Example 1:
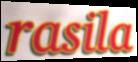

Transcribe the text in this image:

rasila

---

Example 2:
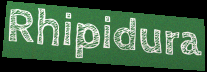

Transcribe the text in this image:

Rhipidura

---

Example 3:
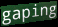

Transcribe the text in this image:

gaping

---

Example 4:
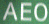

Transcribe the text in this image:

AEO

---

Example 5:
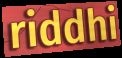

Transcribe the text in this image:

riddhi